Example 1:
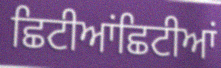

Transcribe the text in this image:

ਛਿਟੀਆਂਛਿਟੀਆਂ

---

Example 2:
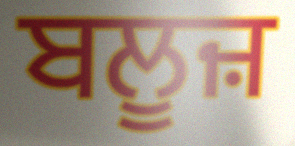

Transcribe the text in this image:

ਬਲੂਜ਼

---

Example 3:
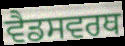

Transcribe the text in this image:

ਵੈਡਸਵਰਥ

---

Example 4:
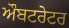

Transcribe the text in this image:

ਔਬਟਰੇਟਰ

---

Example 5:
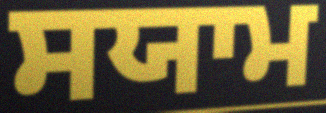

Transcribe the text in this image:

ਸਯਾਮ